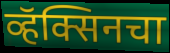
व्हॅक्सिनचा